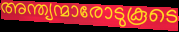
അന്ത്യന്മാരോടുകൂടെ